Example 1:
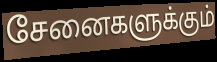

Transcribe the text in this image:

சேனைகளுக்கும்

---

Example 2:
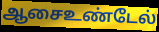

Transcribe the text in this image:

ஆசைஉண்டேல்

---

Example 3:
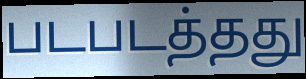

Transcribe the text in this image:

படபடத்தது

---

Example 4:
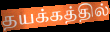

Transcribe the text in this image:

தயக்கத்தில்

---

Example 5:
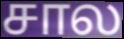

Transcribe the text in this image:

சால